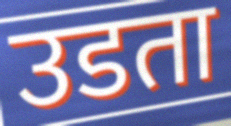
उडता